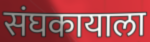
संघकायाला